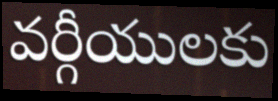
వర్గీయులకు